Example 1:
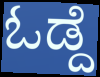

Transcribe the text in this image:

ಓಡ್ದೆ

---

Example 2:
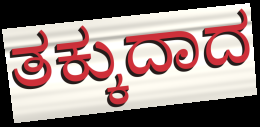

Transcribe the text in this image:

ತಕ್ಕುದಾದ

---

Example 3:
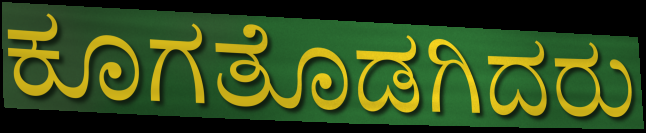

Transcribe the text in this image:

ಕೂಗತೊಡಗಿದರು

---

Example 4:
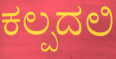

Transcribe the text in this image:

ಕಲ್ಪದಲಿ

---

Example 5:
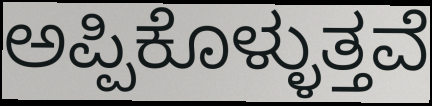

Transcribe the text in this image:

ಅಪ್ಪಿಕೊಳ್ಳುತ್ತವೆ